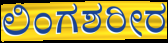
ಲಿಂಗಶರೀರ